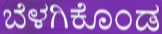
ಬೆಳಗಿಕೊಂಡ